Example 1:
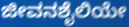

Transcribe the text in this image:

ಜೀವನಶೈಲಿಯೇ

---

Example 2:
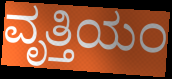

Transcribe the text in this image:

ವೃತ್ತಿಯಂ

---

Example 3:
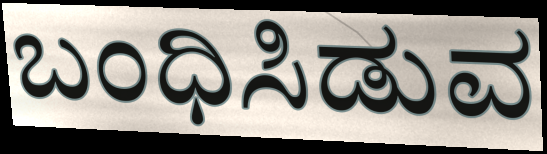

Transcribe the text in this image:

ಬಂಧಿಸಿಡುವ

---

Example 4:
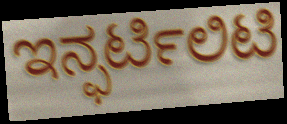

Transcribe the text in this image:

ಇನ್ಫರ್ಟಿಲಿಟಿ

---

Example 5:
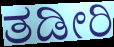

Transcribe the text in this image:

ತಡೀರಿ